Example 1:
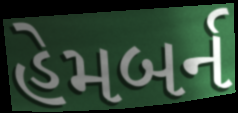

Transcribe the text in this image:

હેમબર્ન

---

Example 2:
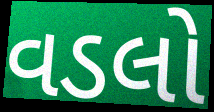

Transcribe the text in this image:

વડલો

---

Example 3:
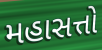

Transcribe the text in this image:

મહાસત્તો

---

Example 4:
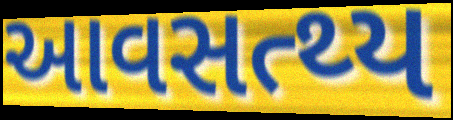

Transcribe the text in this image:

આવસત્થ્ય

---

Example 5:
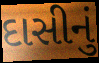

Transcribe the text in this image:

દાસીનું